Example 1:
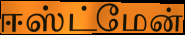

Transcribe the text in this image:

ஈஸ்ட்மேன்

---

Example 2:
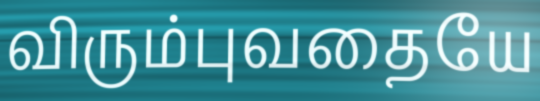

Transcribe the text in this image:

விரும்புவதையே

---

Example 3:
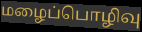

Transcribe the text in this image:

மழைப்பொழிவு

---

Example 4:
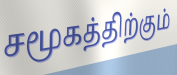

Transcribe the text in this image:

சமூகத்திற்கும்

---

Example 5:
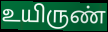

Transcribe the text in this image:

உயிருண்